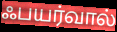
ஃபயர்வால்